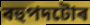
বহুপদটোৰ